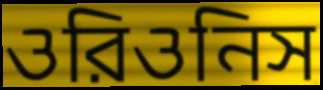
ওরিওনিস